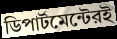
ডিপার্টমেন্টেরই